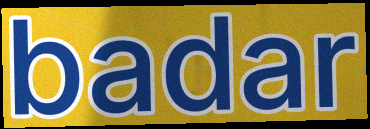
badar